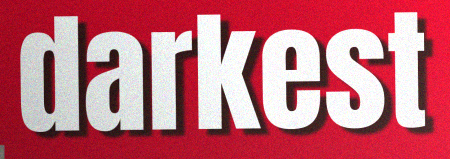
darkest